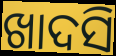
ଖାଦସି